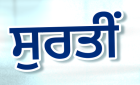
ਸੁਰਤੀਂ